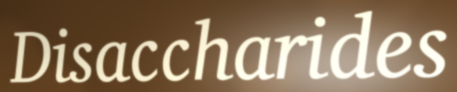
Disaccharides